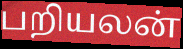
பறியலன்